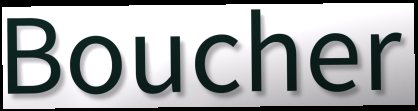
Boucher